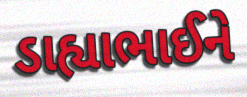
ડાહ્યાભાઈને